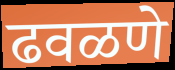
ढवळणे